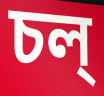
চল্